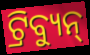
ଟ୍ରିବ୍ୟୁନ୍